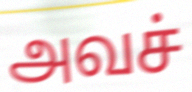
அவச்